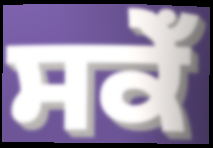
ਸਕੇਁ